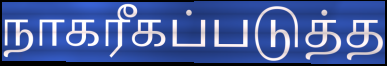
நாகரீகப்படுத்த